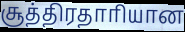
சூத்திரதாரியான